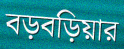
বড়বড়িয়ার